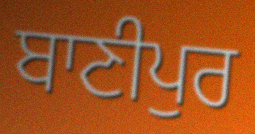
ਬਾਣੀਪੁਰ